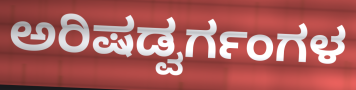
ಅರಿಷಡ್ವರ್ಗಂಗಳ